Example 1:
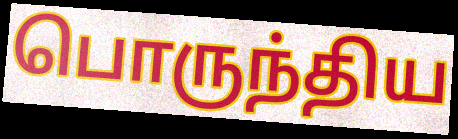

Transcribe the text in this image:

பொருந்திய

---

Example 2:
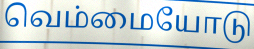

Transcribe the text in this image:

வெம்மையோடு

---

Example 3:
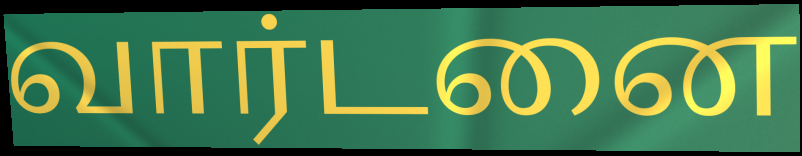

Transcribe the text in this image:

வார்டனை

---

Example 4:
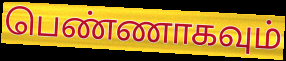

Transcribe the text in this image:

பெண்ணாகவும்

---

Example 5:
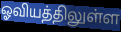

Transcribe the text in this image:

ஓவியத்திலுள்ள